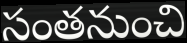
సంతనుంచి